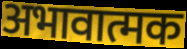
अभावात्मक